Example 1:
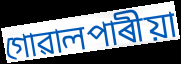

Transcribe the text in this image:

গোৱালপাৰীয়া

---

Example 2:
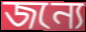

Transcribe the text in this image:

জন্যে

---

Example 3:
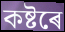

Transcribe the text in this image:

কষ্টৰে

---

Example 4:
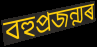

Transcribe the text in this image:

বহুপ্ৰজন্মৰ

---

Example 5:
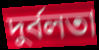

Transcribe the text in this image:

দুৰ্বলতা